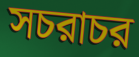
সচরাচর